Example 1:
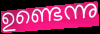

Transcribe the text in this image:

ഉണ്ടെന്നു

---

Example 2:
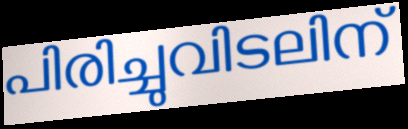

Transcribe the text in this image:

പിരിച്ചുവിടലിന്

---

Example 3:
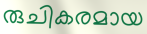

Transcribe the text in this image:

രുചികരമായ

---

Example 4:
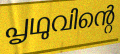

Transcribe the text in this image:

പൃഥുവിന്റെ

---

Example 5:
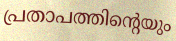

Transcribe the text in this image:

പ്രതാപത്തിന്റെയും